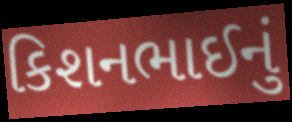
કિશનભાઈનું